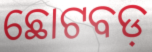
ଛୋଟବଡ଼